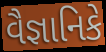
વૈજ્ઞાનિકે